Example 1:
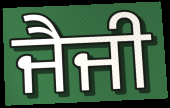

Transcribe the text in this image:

ਜੈਜੀ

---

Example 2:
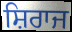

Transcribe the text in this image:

ਸ਼ਿਰਾਜ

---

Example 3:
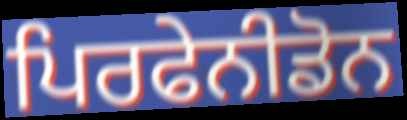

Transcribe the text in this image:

ਪਿਰਫੇਨੀਡੋਨ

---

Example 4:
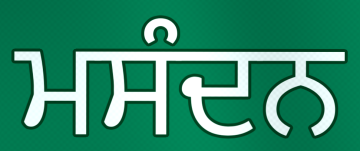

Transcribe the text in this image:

ਮਸੰਦਨ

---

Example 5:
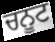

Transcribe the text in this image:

ਚਨੂਟ